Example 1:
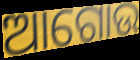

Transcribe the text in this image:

ଆଗୋଉ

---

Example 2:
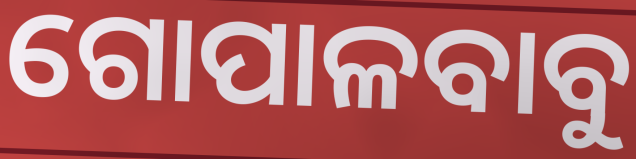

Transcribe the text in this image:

ଗୋପାଳବାବୁ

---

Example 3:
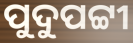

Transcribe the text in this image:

ପୁଦୁପଟ୍ଟୀ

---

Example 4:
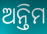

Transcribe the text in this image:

ଅନ୍ତିମ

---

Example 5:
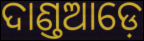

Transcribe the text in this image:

ଦାଣ୍ଡଆଡ଼େ